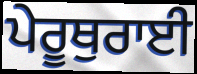
ਪੇਰੂਥੁਰਾਈ